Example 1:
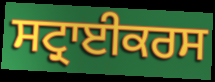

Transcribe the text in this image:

ਸਟ੍ਰਾਈਕਰਸ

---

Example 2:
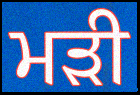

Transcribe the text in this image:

ਮੜੀ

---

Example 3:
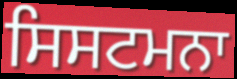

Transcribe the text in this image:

ਸਿਸਟਮਨਾ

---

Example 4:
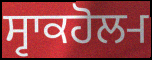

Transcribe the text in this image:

ਸ੍ਟਾਕਹੋਲ੍ਮ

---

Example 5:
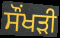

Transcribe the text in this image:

ਸੌਂਖੜੀ